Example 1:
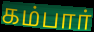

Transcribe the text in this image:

கம்பார்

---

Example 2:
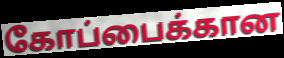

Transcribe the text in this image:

கோப்பைக்கான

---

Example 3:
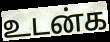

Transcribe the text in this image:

உடன்க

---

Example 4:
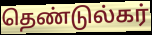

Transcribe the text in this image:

தெண்டுல்கர்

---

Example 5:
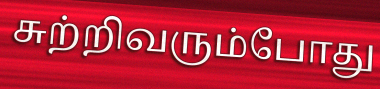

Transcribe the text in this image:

சுற்றிவரும்போது